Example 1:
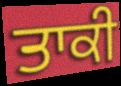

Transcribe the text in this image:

ਤਾਕੀ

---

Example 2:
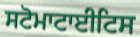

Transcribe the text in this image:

ਸਟੋਮਾਟਾਈਟਿਸ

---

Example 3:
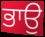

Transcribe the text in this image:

ਭਾਉ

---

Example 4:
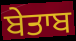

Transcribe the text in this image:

ਬੇਤਾਬ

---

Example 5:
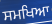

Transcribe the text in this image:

ਸਮਖਿਆ